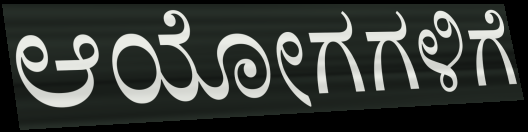
ಆಯೋಗಗಳಿಗೆ